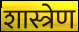
शास्त्रेण